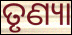
ତୃଣ୍ୟା